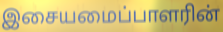
இசையமைப்பாளரின்